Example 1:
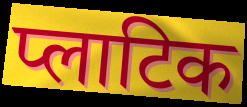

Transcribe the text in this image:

प्लाटिक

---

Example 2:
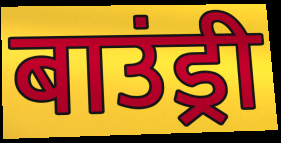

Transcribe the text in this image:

बाउंड्री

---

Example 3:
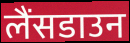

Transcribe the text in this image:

लैंसडाउन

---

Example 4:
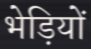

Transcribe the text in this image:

भेड़ियों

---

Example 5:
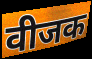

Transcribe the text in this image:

वीजक